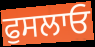
ਫੁਸਲਾਓ